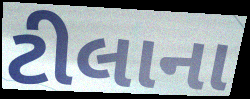
ટીલાના